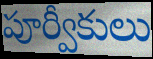
పూర్వీకులు